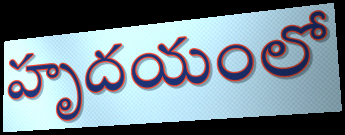
హృదయంలో